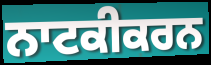
ਨਾਟਕੀਕਰਨ